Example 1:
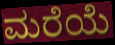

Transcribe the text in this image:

ಮರೆಯೆ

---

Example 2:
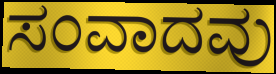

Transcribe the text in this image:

ಸಂವಾದವು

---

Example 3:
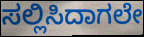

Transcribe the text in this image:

ಸಲ್ಲಿಸಿದಾಗಲೇ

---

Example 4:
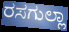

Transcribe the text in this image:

ರಸಗುಲ್ಲಾ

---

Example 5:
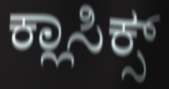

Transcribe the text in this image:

ಕ್ಲಾಸಿಕ್ಸ್